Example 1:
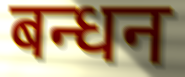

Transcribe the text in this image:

बन्धन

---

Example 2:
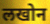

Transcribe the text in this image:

लखोन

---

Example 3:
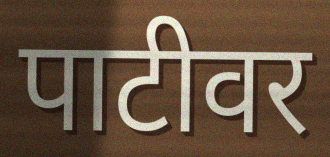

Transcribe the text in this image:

पाटीवर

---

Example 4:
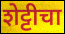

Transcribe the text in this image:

शेट्टीचा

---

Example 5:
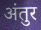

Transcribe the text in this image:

अंतुर